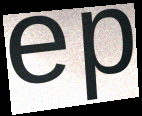
ep